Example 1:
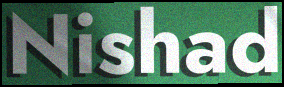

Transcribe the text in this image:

Nishad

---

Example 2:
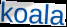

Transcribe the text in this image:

koala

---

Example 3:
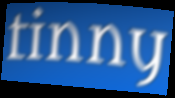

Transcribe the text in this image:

tinny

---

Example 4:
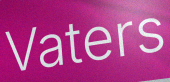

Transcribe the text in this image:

Vaters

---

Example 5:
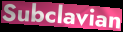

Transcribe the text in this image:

Subclavian